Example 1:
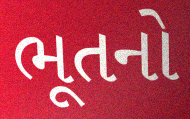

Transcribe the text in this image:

ભૂતનો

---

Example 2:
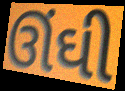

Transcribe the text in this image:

ઊંઘી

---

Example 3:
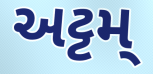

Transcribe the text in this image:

અટ્ટમ્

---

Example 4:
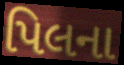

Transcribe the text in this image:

પિલના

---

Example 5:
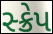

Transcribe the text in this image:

સ્ક્રેપ